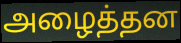
அழைத்தன